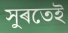
সুৰতেই